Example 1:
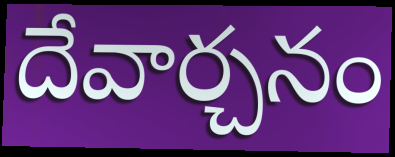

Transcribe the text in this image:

దేవార్చనం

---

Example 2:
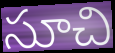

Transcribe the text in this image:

సూచి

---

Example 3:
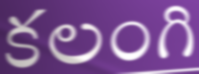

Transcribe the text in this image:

కలంగి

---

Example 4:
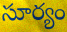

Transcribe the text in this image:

సూర్యం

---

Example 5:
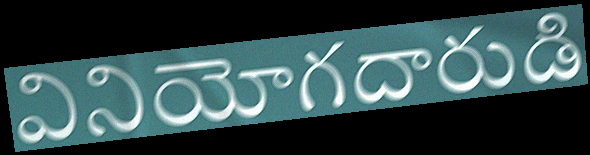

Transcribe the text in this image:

వినియోగదారుడి